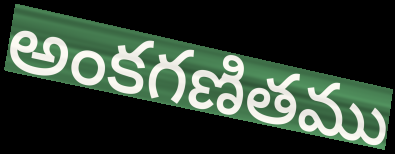
అంకగణితము